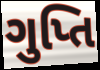
ગુપ્તિ